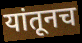
यांतूनच